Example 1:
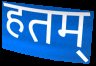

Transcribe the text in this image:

हतम्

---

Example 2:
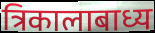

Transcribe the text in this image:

त्रिकालाबाध्य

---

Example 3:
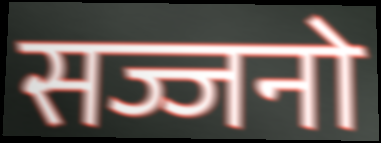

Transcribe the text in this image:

सज्जनो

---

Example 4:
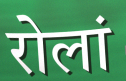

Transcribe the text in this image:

रोलां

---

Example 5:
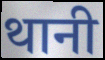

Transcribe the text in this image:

थानी